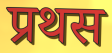
प्रथस